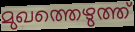
മുഖത്തെഴുത്ത്